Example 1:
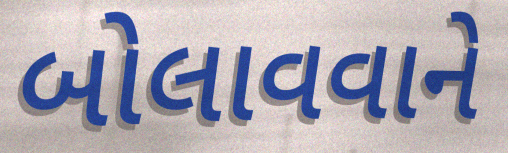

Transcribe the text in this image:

બોલાવવાને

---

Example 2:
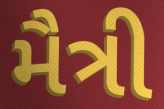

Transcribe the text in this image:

મૈત્રી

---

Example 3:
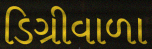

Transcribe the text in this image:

ડિગ્રીવાળા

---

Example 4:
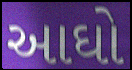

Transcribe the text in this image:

આઘો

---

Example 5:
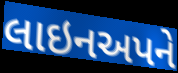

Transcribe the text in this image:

લાઇનઅપને